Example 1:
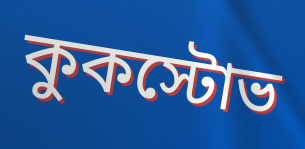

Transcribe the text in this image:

কুকস্টোভ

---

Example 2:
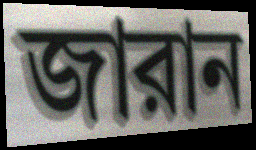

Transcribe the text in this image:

জারান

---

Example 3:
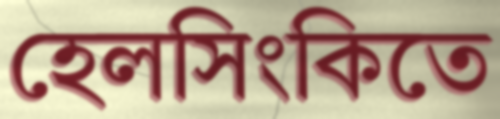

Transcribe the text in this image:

হেলসিংকিতে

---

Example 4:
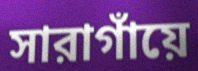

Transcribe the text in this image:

সারাগাঁয়ে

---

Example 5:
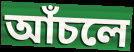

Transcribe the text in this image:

আঁচলে